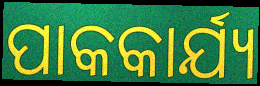
ପାକକାର୍ଯ୍ୟ